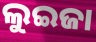
ଲୁଇଜା